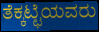
ತೆಕ್ಕಟ್ಟೆಯವರು